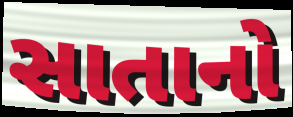
સાતાનો